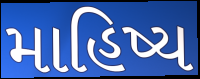
માહિષ્ય